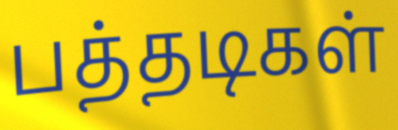
பத்தடிகள்